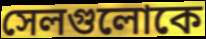
সেলগুলোকে